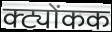
क्ट्योंकक